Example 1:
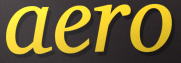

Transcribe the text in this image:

aero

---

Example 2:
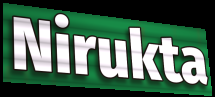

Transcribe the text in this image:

Nirukta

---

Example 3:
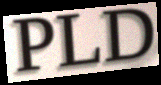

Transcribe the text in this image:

PLD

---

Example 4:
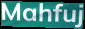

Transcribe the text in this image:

Mahfuj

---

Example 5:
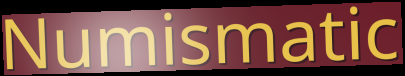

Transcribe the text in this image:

Numismatic